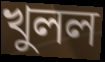
খুলল